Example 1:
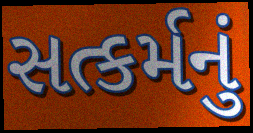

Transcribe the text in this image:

સત્કર્મનું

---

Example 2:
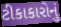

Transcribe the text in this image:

ટીકાકારોનું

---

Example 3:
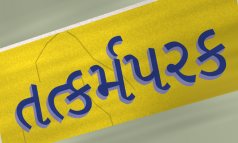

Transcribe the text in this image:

તત્કર્મપરક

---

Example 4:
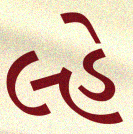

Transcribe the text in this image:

લ્હે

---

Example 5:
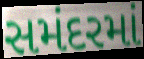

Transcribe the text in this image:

સમંદરમાં